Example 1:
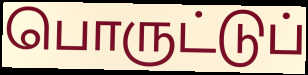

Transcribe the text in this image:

பொருட்டுப்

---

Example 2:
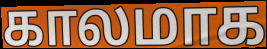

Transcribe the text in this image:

காலமாக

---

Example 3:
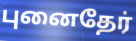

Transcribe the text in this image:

புனைதேர்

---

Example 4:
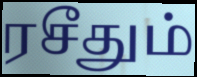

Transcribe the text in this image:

ரசீதும்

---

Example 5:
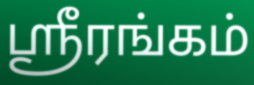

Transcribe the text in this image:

ஸ்ரீரங்கம்